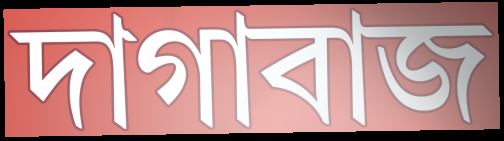
দাগাবাজ